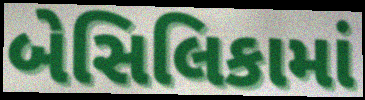
બેસિલિકામાં